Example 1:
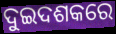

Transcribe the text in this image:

ଦୁଇଦଶକରେ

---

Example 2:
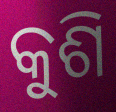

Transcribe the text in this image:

କୁଶି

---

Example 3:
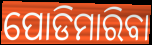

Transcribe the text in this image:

ପୋଡିମାରିବା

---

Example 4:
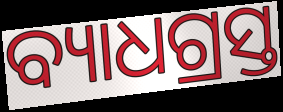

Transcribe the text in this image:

ବ୍ୟାଧଗ୍ରସ୍ତ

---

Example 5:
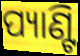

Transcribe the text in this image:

ପ୍ୟାଣ୍ଟି